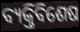
ବ୍ୟକ୍ତିବିଶେଷ